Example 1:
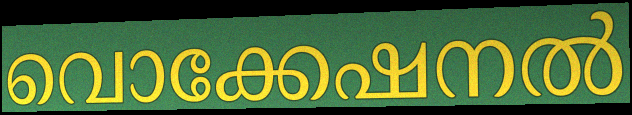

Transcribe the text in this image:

വൊക്കേഷനൽ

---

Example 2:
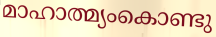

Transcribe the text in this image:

മാഹാത്മ്യംകൊണ്ടു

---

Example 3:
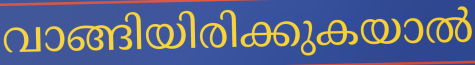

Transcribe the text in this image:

വാങ്ങിയിരിക്കുകയാൽ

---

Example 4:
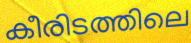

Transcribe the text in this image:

കീരിടത്തിലെ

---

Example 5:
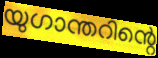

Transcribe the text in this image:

യുഗാന്തറിന്റെ